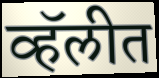
व्हॅलीत